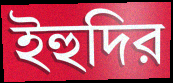
ইহুদির